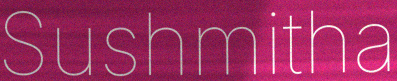
Sushmitha